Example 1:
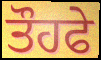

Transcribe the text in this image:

ਤੌਹਫੇ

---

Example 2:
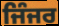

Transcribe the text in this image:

ਜਿੰਜਰ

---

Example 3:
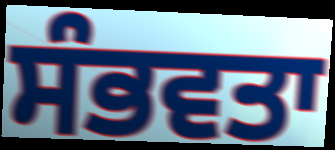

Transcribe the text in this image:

ਸੰਭਵਤਾ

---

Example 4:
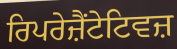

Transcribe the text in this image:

ਰਿਪਰੇਜ਼ੈਂਟੇਟਿਵਜ਼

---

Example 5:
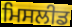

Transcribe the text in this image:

ਮਿਸਲੀਡ